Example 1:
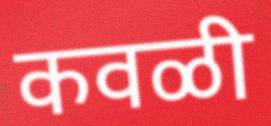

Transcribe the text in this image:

कवळी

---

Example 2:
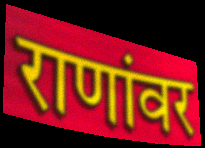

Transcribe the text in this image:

राणांवर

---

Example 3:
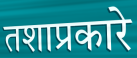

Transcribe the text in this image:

तशाप्रकारे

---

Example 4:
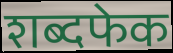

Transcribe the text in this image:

शब्दफेक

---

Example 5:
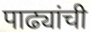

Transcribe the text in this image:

पाढ्यांची